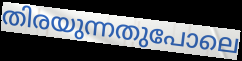
തിരയുന്നതുപോലെ